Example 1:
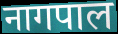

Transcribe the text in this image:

नागपाल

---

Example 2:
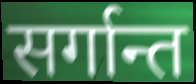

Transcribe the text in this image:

सर्गान्त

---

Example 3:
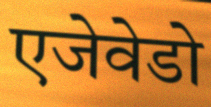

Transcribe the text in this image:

एजेवेडो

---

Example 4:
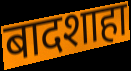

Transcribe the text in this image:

बादशाहा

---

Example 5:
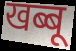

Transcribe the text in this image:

खब्‍बू